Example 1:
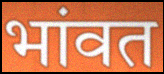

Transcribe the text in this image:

भांवत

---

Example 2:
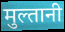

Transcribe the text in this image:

मुल्‍तानी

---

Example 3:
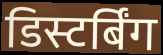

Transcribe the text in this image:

डिस्टर्बिंग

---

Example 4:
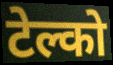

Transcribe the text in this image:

टेल्को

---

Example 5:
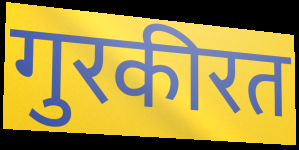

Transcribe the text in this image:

गुरकीरत